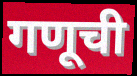
गणूची